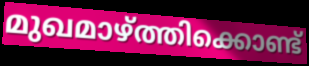
മുഖമാഴ്ത്തിക്കൊണ്ട്